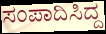
ಸಂಪಾದಿಸಿದ್ದ